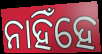
ନାହିଁହେ